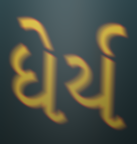
ધેર્ય